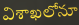
విశాఖలోనూ